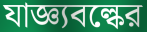
যাজ্ঞ্যবল্কের